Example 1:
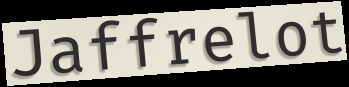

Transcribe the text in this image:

Jaffrelot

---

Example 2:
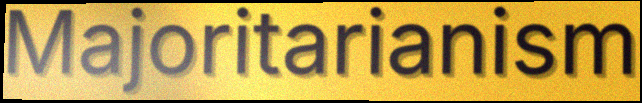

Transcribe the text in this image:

Majoritarianism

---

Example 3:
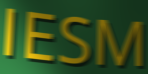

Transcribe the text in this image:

IESM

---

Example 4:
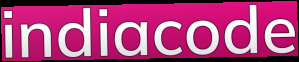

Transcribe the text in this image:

indiacode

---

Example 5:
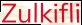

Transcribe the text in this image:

Zulkifli